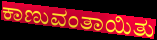
ಕಾಣುವಂತಾಯಿತು